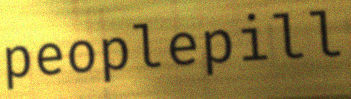
peoplepill